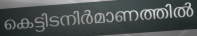
കെട്ടിടനിർമാണത്തിൽ